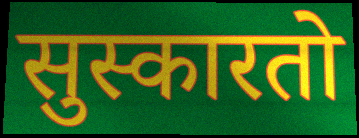
सुस्कारतो